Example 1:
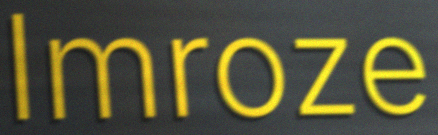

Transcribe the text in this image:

Imroze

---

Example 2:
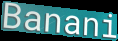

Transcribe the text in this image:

Banani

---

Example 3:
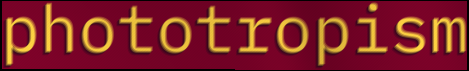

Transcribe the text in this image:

phototropism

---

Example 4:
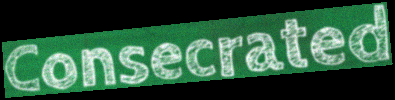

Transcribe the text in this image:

Consecrated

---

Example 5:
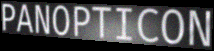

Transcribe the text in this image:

PANOPTICON